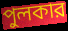
পুলকার